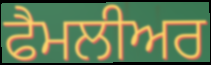
ਫੈਮਲੀਅਰ